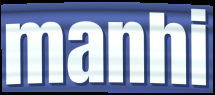
manhi